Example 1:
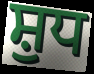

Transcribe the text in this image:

ਸ਼ੁਧ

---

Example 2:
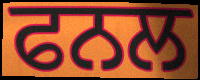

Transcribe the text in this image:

ਫਨਲ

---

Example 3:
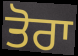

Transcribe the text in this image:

ਤੋਰਾ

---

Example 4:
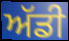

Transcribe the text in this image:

ਅੱਡੀ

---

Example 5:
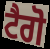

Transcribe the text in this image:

ਟੈਗੋ